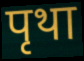
पृथा